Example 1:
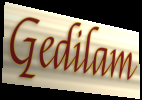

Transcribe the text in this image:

Gedilam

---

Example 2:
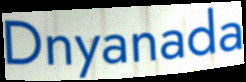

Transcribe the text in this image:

Dnyanada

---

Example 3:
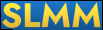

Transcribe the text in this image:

SLMM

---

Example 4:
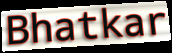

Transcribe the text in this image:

Bhatkar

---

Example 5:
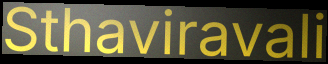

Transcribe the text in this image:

Sthaviravali